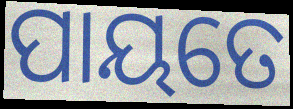
ପାୟତେ